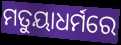
ମତୁୟାଧର୍ମରେ